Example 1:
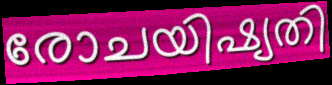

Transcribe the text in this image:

രോചയിഷ്യതി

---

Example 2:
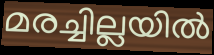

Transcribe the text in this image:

മരച്ചില്ലയിൽ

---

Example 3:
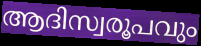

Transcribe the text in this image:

ആദിസ്വരൂപവും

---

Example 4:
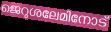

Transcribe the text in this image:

ജെറുശലേമിനോട്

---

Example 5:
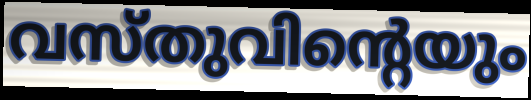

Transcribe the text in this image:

വസ്തുവിന്റെയും